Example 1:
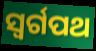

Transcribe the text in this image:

ସ୍ୱର୍ଗପଥ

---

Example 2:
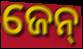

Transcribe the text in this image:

ଜେନ୍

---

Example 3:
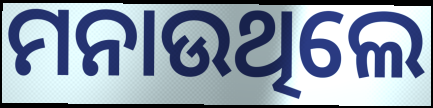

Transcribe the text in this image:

ମନାଉଥିଲେ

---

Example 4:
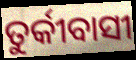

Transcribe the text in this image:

ତୁର୍କୀବାସୀ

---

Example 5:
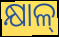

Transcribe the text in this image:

କ୍ଷାଳ୍